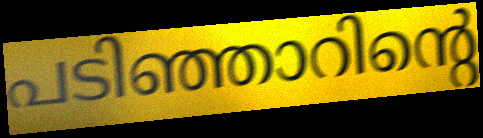
പടിഞ്ഞാറിന്റെ